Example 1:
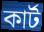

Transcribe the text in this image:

কার্ট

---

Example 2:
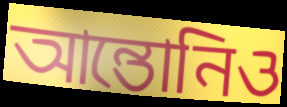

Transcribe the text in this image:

আন্তোনিও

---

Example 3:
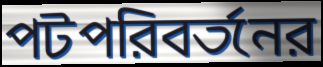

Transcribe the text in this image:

পটপরিবর্তনের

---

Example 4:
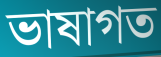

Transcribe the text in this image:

ভাষাগত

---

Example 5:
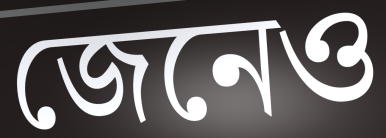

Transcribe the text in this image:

জেনেও